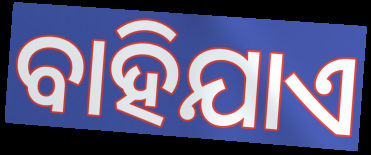
ବାହିଯାଏ